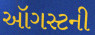
ઑગસ્ટની